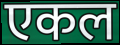
एकल